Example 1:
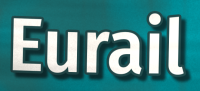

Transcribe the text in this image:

Eurail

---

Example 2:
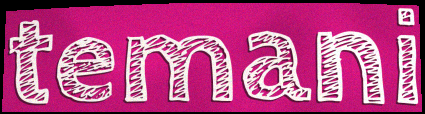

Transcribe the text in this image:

temani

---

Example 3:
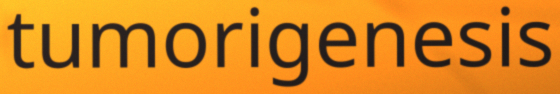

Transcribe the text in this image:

tumorigenesis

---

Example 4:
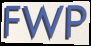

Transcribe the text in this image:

FWP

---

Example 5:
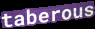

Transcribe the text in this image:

taberous